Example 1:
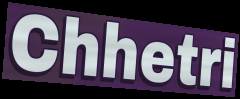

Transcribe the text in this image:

Chhetri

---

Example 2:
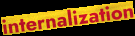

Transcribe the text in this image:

internalization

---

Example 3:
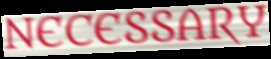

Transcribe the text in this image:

NECESSARY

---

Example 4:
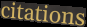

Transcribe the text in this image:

citations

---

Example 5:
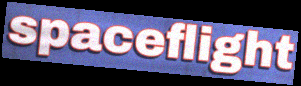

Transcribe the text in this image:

spaceflight